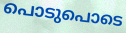
പൊടുപൊടെ